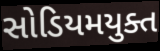
સોડિયમયુક્ત